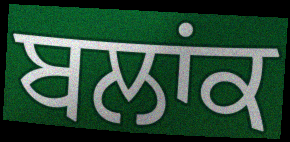
ਬਲਾਂਕ